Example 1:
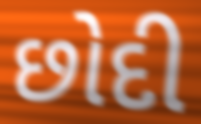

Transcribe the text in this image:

છોદી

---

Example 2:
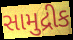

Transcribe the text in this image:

સામુદ્રીક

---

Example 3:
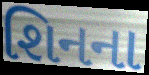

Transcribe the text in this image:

શિનના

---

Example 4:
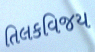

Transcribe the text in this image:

તિલકવિજય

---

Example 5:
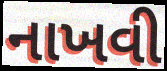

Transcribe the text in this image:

નાખવી